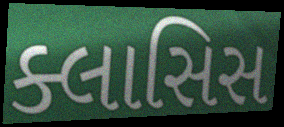
ક્લાસિસ